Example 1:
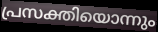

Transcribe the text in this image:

പ്രസക്തിയൊന്നും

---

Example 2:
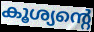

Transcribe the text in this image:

കൂശ്യന്റെ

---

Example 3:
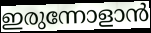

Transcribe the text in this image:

ഇരുന്നോളാൻ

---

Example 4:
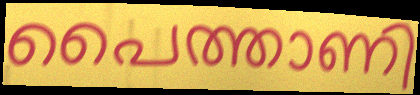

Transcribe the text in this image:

പൈത്താണി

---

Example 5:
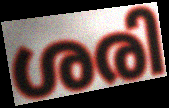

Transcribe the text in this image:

ശരി